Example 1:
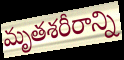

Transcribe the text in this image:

మృతశరీరాన్ని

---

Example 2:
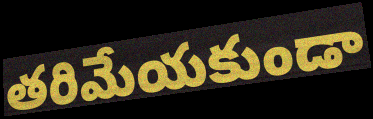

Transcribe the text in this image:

తరిమేయకుండా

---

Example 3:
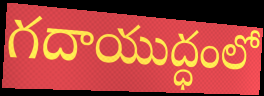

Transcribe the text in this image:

గదాయుద్ధంలో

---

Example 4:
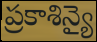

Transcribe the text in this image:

ప్రకాశిన్యై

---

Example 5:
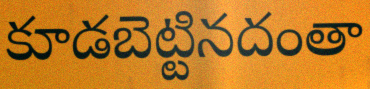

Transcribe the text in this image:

కూడబెట్టినదంతా